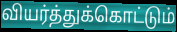
வியர்த்துக்கொட்டும்